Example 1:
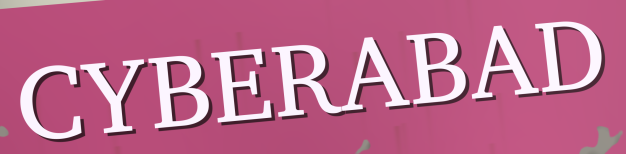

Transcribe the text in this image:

CYBERABAD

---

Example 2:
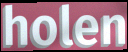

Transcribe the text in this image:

holen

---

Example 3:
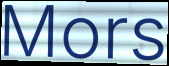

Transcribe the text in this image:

Mors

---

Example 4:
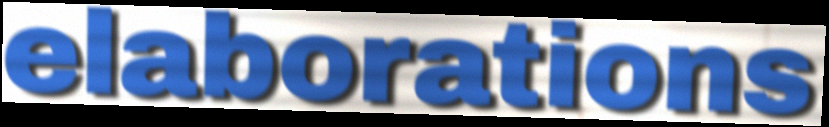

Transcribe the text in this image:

elaborations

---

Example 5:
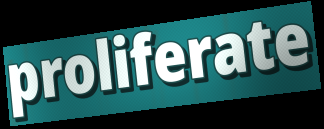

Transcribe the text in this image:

proliferate